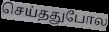
செய்ததுபோல